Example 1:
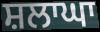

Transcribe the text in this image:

ਸ਼ਲਾਘਾ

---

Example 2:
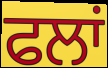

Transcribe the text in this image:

ਫਲਾਂ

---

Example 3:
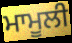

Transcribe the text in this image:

ਮਾਮੂਲੀ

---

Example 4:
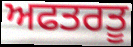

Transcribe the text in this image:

ਅਫਤਰਤੂ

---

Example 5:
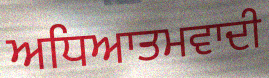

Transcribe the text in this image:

ਅਧਿਆਤਮਵਾਦੀ